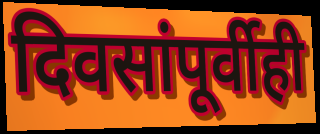
दिवसांपूर्वीही